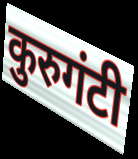
कुरुगंटी